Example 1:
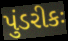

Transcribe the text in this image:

પુંડરીકઃ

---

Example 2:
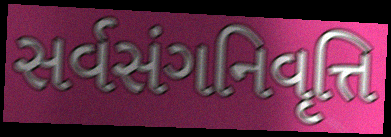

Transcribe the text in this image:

સર્વસંગનિવૃત્તિ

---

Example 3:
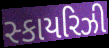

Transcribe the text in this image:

સ્કાયરિઝી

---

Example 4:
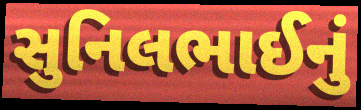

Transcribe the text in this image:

સુનિલભાઈનું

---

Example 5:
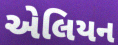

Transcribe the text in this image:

એલિયન